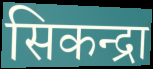
सिकन्द्रा